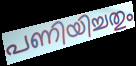
പണിയിച്ചതും